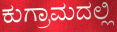
ಕುಗ್ರಾಮದಲ್ಲಿ